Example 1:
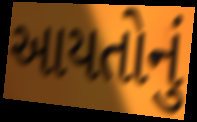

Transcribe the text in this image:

આયતોનું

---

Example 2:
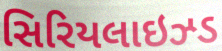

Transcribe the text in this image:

સિરિયલાઇઝ્ડ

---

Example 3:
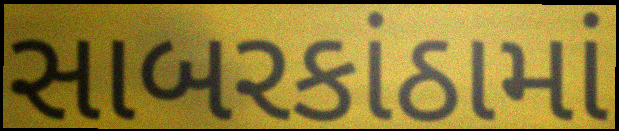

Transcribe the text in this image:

સાબરકાંઠામાં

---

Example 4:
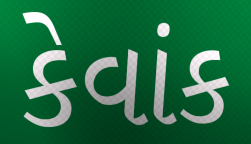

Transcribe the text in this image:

કેવાંક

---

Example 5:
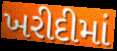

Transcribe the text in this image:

ખરીદીમાં